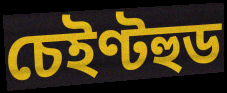
চেইণ্টহুড